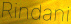
Rindani